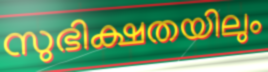
സുഭിക്ഷതയിലും